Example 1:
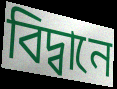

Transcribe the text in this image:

বিদ্বানে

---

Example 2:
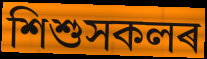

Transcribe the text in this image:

শিশুসকলৰ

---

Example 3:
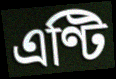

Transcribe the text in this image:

এণ্টি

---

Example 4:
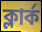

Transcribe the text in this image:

ক্লাৰ্ক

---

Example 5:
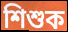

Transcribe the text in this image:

শিশুক